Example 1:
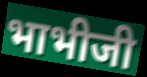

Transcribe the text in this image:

भाभीजी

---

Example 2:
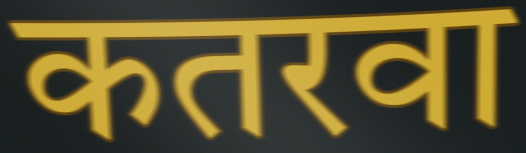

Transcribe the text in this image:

कतरवा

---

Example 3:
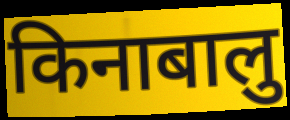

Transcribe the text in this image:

किनाबालु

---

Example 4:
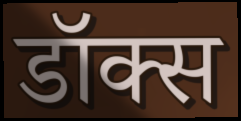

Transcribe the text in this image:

डॉक्स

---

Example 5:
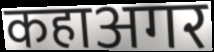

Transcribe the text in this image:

कहाअगर